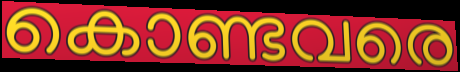
കൊണ്ടവരെ